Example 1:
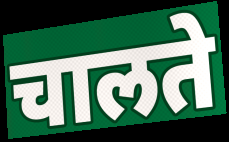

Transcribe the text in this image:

चालते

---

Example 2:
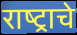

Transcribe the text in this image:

राष्ट्राचे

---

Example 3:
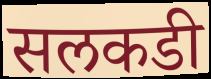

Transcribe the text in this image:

सलकडी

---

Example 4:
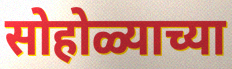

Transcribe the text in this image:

सोहोळ्याच्या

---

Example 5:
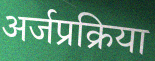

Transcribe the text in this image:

अर्जप्रक्रिया